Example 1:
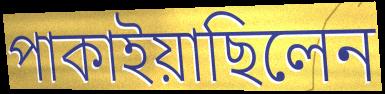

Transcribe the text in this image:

পাকাইয়াছিলেন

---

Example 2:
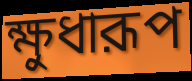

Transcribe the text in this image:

ক্ষুধারূপ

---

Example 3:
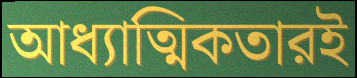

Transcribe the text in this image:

আধ্যাত্মিকতারই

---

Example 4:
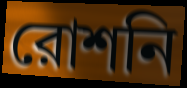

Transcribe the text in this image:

রোশনি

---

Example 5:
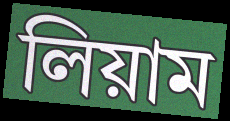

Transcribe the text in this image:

লিয়াম